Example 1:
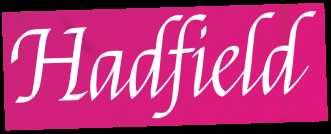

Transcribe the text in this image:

Hadfield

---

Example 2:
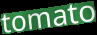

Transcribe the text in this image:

tomato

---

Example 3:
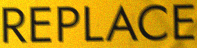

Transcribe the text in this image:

REPLACE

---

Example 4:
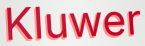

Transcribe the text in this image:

Kluwer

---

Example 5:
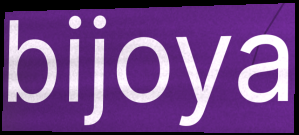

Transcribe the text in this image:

bijoya